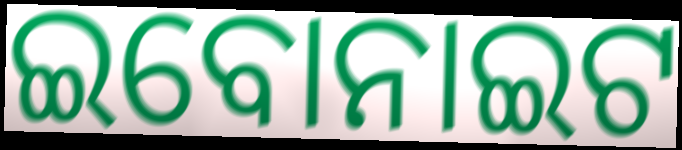
ଇବୋନାଇଟ